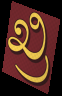
ಖ್ರಿ